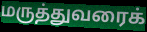
மருத்துவரைக்